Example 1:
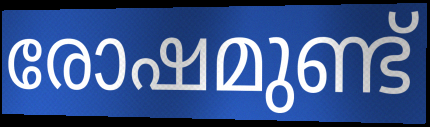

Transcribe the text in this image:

രോഷമുണ്ട്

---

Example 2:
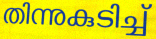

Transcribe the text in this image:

തിന്നുകുടിച്ച്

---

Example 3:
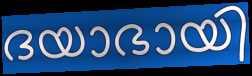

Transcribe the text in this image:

ദയാഭായി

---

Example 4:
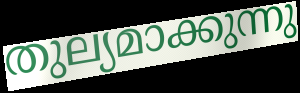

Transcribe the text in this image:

തുല്യമാക്കുന്നു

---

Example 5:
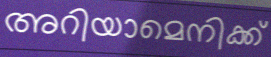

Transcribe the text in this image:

അറിയാമെനിക്ക്